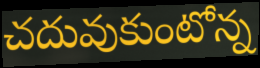
చదువుకుంటోన్న